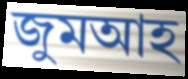
জুমআহ